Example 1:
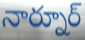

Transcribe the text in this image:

నార్నూర్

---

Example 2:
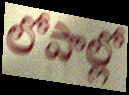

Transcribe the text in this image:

లోపాల్లో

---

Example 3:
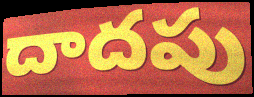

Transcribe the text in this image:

దాదపు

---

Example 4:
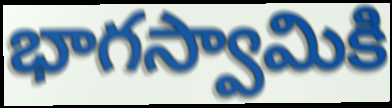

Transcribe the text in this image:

భాగస్వామికి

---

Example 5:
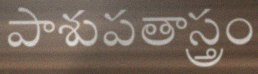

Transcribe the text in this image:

పాశుపతాస్త్రం